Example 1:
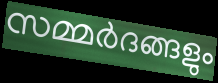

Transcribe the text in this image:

സമ്മർദങ്ങളും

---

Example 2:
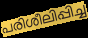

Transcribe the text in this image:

പരിശീലിപ്പിച്ച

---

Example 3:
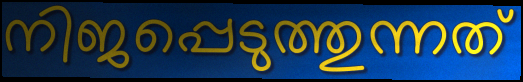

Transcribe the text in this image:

നിജപ്പെടുത്തുന്നത്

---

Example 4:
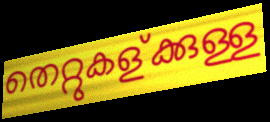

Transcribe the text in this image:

തെറ്റുകള്ക്കുള്ള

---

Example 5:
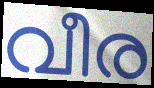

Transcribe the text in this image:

വീര